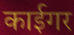
काईगर